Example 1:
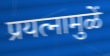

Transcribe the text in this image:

प्रयत्नामुळें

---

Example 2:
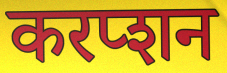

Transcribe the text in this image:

करप्शन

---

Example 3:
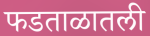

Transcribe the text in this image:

फडताळातली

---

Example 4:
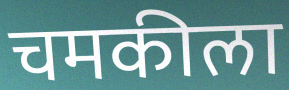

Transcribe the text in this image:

चमकीला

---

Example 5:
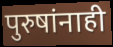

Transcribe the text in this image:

पुरुषांनाही